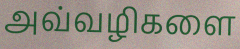
அவ்வழிகளை